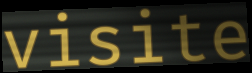
visite